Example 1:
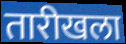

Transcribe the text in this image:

तारीखला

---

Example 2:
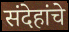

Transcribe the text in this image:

संदेहांचे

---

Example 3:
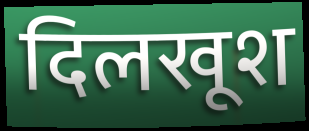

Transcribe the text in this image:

दिलखूश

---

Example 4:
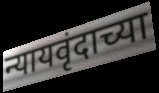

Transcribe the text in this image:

न्यायवृंदाच्या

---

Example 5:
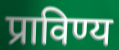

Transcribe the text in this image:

प्राविण्य